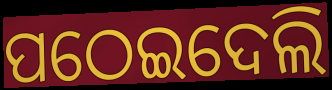
ପଠେଇଦେଲି